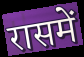
रासमें